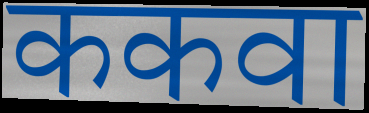
ककवा